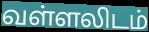
வள்ளலிடம்